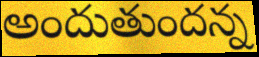
అందుతుందన్న